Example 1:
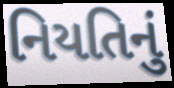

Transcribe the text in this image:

નિયતિનું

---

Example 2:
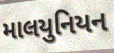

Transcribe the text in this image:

માલયુનિયન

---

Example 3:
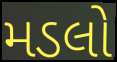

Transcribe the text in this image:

મડલો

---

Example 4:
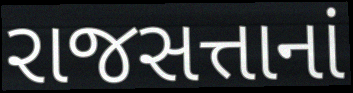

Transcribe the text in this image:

રાજસત્તાનાં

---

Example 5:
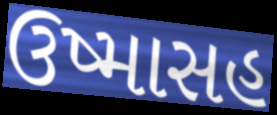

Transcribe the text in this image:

ઉષ્માસહ